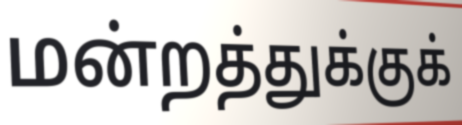
மன்றத்துக்குக்